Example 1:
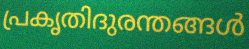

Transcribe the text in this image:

പ്രകൃതിദുരന്തങ്ങൾ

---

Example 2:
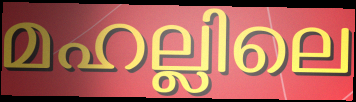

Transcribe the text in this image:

മഹല്ലിലെ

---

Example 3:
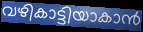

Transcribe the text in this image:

വഴികാട്ടിയാകാൻ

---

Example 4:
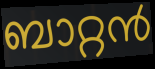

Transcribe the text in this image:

ബാറ്റൻ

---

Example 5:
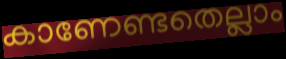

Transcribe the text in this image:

കാണേണ്ടതെല്ലാം